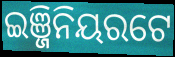
ଇଞ୍ଜିନିୟରଟେ